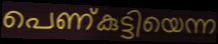
പെണ്കുട്ടിയെന്ന